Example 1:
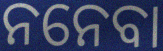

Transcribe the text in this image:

ନନେବା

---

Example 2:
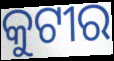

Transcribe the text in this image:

କୁଟୀର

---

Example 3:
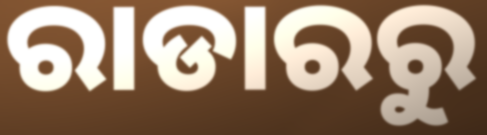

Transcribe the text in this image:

ରାଡାରରୁ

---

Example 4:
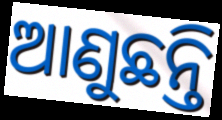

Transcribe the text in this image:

ଆଣୁଛନ୍ତି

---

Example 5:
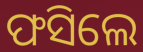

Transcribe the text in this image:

ଫସିଲେ